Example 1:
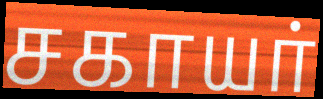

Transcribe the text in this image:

சகாயர்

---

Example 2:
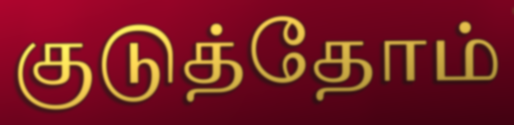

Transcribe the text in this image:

குடுத்தோம்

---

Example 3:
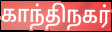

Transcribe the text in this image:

காந்திநகர்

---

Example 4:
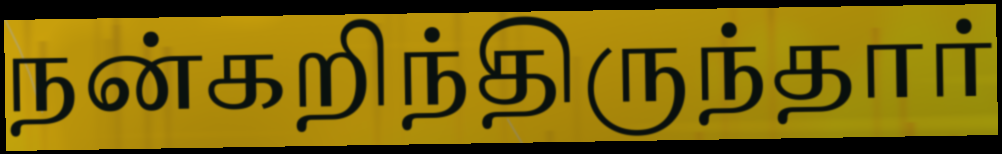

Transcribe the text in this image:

நன்கறிந்திருந்தார்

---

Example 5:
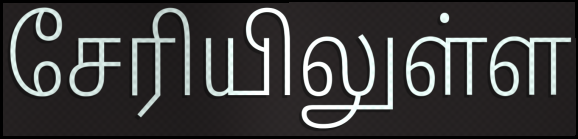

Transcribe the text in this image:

சேரியிலுள்ள